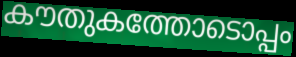
കൗതുകത്തോടൊപ്പം